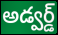
అడ్వర్డ్